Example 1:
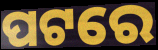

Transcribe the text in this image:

ପଟରେ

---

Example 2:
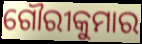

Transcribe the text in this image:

ଗୌରୀକୁମାର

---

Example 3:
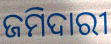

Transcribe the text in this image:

ଜମିଦାରୀ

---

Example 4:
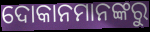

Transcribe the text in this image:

ଦୋକାନମାନଙ୍କରୁ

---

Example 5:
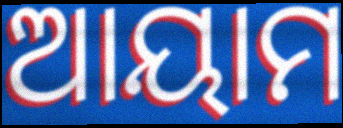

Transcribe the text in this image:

ଆୟାମ